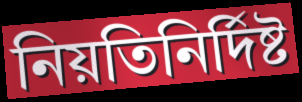
নিয়তিনির্দিষ্ট